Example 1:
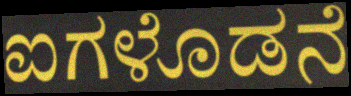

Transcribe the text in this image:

ಐಗಳೊಡನೆ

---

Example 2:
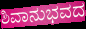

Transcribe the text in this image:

ಶಿವಾನುಭವದ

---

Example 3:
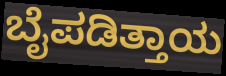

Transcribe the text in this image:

ಬೈಪಡಿತ್ತಾಯ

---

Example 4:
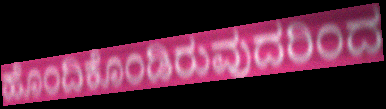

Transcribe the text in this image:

ಹೊಂದಿಕೊಂಡಿರುವುದರಿಂದ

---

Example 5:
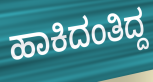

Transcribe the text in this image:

ಹಾಕಿದಂತಿದ್ದ